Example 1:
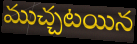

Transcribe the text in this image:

ముచ్చటయిన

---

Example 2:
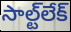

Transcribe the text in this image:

సాల్ట్‌లేక్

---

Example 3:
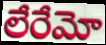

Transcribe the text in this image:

లేరేమో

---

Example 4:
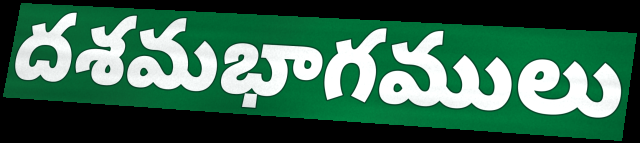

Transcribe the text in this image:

దశమభాగములు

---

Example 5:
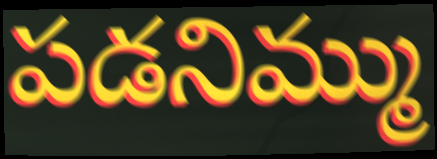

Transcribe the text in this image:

పడనిమ్ము